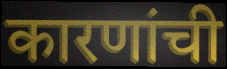
कारणांची